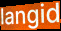
langid